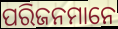
ପରିଜନମାନେ